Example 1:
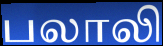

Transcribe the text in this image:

பலாலி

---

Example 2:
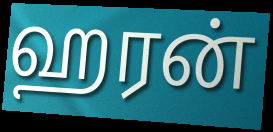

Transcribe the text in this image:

ஹரன்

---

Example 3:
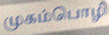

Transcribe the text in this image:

முகம்பொழி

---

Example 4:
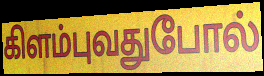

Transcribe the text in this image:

கிளம்புவதுபோல்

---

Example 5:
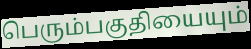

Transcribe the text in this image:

பெரும்பகுதியையும்